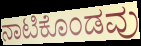
ನಾಟಿಕೊಂಡವು